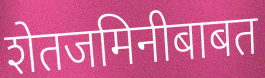
शेतजमिनीबाबत